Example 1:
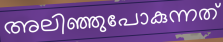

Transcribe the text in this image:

അലിഞ്ഞുപോകുന്നത്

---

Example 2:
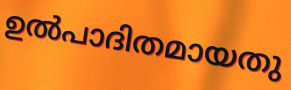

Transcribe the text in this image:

ഉൽപാദിതമായതു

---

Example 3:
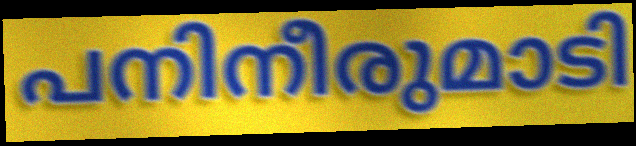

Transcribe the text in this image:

പനിനീരുമാടി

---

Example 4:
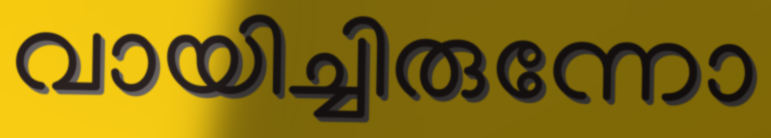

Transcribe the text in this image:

വായിച്ചിരുന്നോ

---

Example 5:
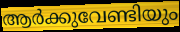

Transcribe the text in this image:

ആർക്കുവേണ്ടിയും